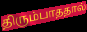
திரும்பாததால்